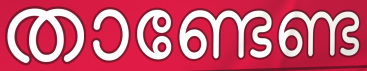
താണ്ടേണ്ട